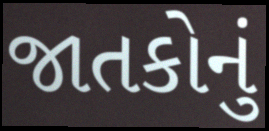
જાતકોનું